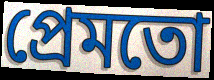
প্ৰেমতো